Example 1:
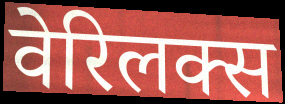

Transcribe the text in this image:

वेरिलक्स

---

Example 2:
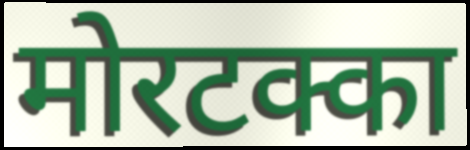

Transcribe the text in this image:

मोरटक्का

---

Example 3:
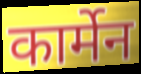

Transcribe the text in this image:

कार्मेन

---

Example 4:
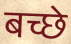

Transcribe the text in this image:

बच्छे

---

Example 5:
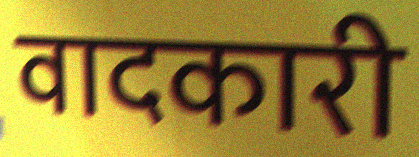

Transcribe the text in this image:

वादकारी